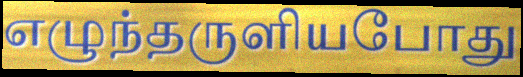
எழுந்தருளியபோது